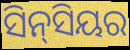
ସିନ୍‌ସିୟର